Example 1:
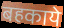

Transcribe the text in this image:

बहकाये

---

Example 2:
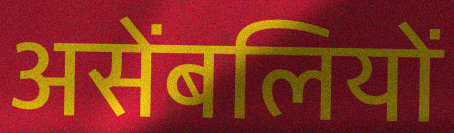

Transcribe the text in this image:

असेंबलियों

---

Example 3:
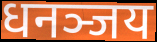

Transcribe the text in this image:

धनञ्जय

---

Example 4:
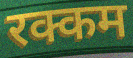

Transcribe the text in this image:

रक्कम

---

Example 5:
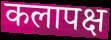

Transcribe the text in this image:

कलापक्ष